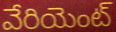
వేరియెంట్